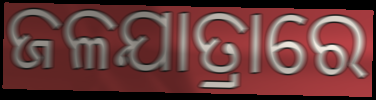
ଜଳଯାତ୍ରାରେ